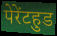
पेरेंटहुड